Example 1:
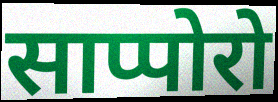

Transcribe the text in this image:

साप्पोरो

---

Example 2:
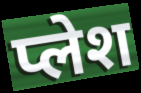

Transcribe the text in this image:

प्लेश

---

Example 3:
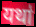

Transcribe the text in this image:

यथा॑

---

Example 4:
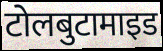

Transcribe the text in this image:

टोलबुटामाइड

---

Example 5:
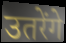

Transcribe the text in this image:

उतरेंगे